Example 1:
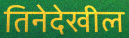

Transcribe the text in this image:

तिनेदेखील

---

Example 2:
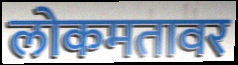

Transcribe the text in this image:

लोकमतावर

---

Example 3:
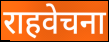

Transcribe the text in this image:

राहवेचना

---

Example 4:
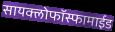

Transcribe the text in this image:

सायक्लोफॉस्फामाईड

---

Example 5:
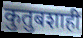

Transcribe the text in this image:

कुतुबशाही